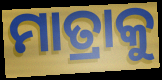
ମାତ୍ରାକୁ